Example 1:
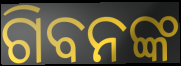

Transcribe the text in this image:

ଗିବନଙ୍କ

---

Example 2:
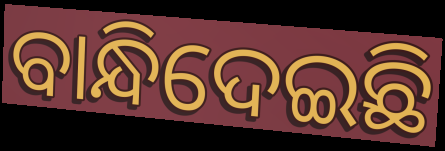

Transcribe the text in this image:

ବାନ୍ଧିଦେଇଛି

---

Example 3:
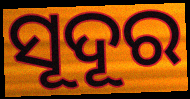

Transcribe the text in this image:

ସୂଦୂର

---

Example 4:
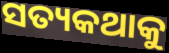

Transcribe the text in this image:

ସତ୍ୟକଥାକୁ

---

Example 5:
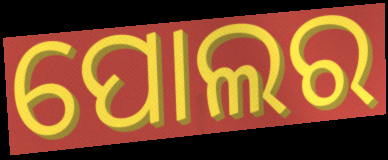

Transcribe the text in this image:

ପୋଲର